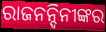
ରାଜନନ୍ଦିନୀଙ୍କର